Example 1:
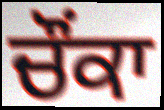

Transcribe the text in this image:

ਚੌਂਕਾ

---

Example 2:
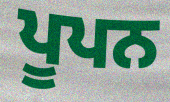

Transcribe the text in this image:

ਪੂਪਨ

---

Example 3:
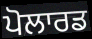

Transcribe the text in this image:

ਪੋਲਾਰਡ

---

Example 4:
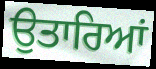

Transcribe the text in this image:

ਉਤਾਰਿਆਂ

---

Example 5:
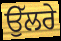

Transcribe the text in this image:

ਉੱਲਰੇ